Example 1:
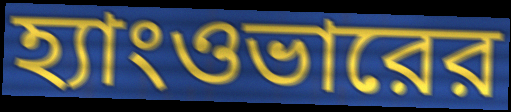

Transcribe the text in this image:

হ্যাংওভারের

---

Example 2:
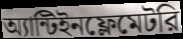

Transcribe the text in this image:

অ্যান্টিইনফ্লেমেটরি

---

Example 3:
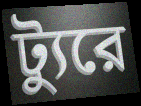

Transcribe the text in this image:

ট্যুরে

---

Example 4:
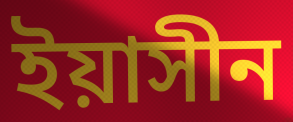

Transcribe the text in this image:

ইয়াসীন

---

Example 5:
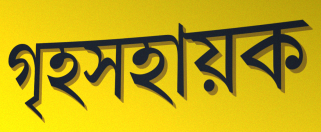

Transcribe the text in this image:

গৃহসহায়ক